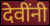
देवींनी